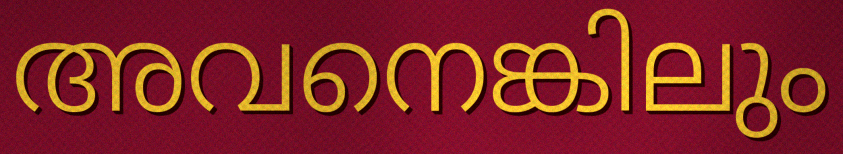
അവനെങ്കിലും